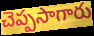
చెప్పసాగారు